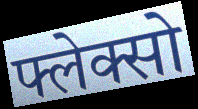
फ्लेक्सो